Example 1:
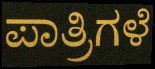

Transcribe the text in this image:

ಪಾತ್ರಿಗಳೆ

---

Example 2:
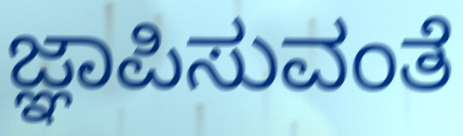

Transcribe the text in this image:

ಜ್ಞಾಪಿಸುವಂತೆ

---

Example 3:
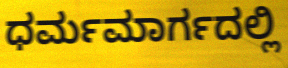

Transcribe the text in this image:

ಧರ್ಮಮಾರ್ಗದಲ್ಲಿ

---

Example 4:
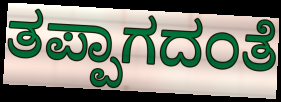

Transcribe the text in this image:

ತಪ್ಪಾಗದಂತೆ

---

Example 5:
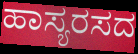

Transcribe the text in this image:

ಹಾಸ್ಯರಸದ